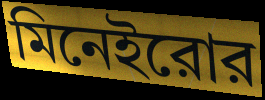
মিনেইরোর